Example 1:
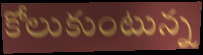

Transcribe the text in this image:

కోలుకుంటున్న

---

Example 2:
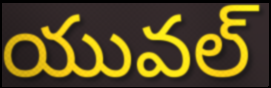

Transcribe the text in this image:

యువల్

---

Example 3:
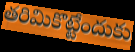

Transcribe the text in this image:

తరిమికొట్టేందుకు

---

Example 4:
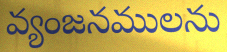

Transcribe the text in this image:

వ్యంజనములను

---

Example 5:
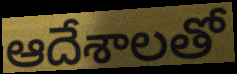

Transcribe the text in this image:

ఆదేశాలతో